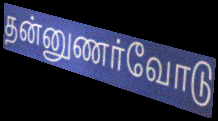
தன்னுணர்வோடு